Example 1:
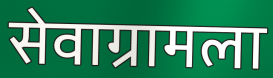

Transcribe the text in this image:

सेवाग्रामला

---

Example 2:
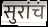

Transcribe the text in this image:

सुरांचं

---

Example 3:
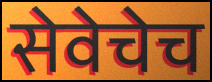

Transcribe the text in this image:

सेवेचेच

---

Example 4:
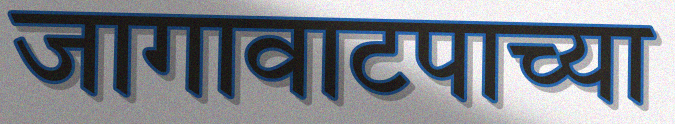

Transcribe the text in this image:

जागावाटपाच्या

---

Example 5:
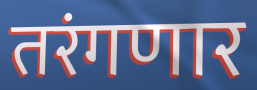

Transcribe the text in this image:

तरंगणार